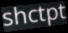
shctpt